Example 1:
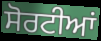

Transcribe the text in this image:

ਸੋਰਟੀਆਂ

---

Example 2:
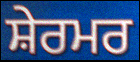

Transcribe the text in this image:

ਸ਼ੇਰਮਰ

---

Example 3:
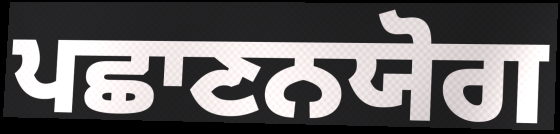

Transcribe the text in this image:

ਪਛਾਣਨਯੋਗ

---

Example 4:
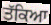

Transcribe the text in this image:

ਤੱਕਿਆ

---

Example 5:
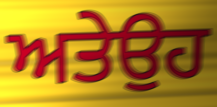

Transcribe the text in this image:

ਅਤੇਉਹ